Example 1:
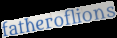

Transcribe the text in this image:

fatheroflions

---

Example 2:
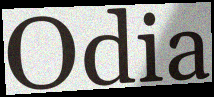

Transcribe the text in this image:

Odia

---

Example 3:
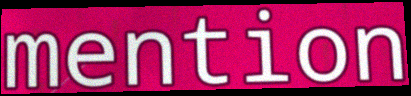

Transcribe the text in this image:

mention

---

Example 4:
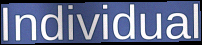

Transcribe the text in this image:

Individual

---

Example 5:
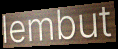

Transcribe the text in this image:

lembut